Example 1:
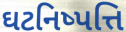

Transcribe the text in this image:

ઘટનિષ્પત્તિ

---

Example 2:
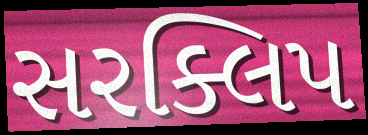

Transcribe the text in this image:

સરક્લિપ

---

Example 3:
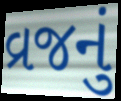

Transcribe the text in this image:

વ્રજનું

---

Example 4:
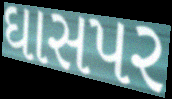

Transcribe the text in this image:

ઘાસપર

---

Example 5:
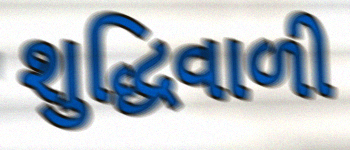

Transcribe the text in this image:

શુદ્ધિવાળી